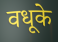
वधूके